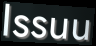
Issuu